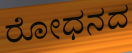
ರೋಧನದ